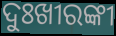
ଦୁଃଖୀରଙ୍କୀ